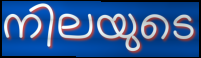
നിലയുടെ